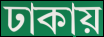
ঢাকায়